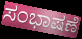
ಸಂಭಾಷಣೆ